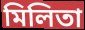
মিলিতা